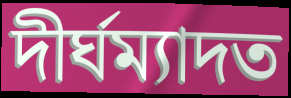
দীৰ্ঘম্যাদত